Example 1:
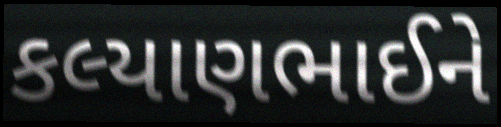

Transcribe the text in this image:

કલ્યાણભાઈને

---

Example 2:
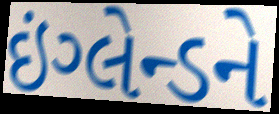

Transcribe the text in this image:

ઇંગ્લેન્ડને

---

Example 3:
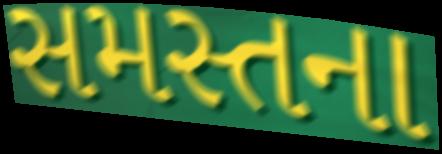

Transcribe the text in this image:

સમસ્તના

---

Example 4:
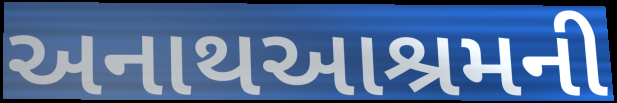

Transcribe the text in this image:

અનાથઆશ્રમની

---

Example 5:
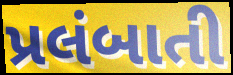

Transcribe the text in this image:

પ્રલંબાતી